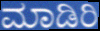
ಮಾಡಿರಿ